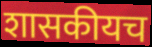
शासकीयच